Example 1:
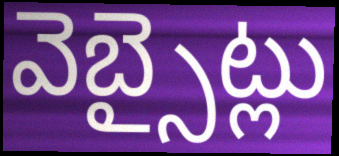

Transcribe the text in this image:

వెబ్సైట్లు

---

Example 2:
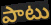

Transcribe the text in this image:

పాటు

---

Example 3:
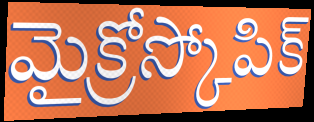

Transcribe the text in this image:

మైక్రోస్కోపిక్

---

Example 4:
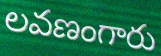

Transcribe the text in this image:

లవణంగారు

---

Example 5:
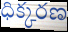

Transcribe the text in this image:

ధిక్కరణ